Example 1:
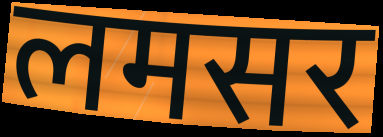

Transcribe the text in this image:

लमसर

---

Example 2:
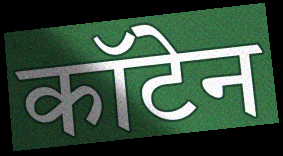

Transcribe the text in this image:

कॉटेन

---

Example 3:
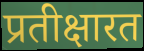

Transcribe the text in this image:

प्रतीक्षारत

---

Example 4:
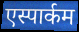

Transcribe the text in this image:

एस्पार्कम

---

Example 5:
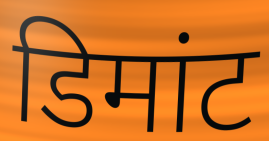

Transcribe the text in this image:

डिमांट